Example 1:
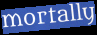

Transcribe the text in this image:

mortally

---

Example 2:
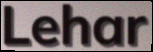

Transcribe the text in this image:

Lehar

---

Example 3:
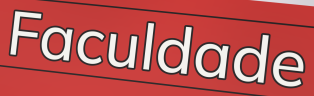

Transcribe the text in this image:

Faculdade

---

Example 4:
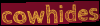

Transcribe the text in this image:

cowhides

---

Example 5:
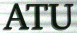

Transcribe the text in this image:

ATU